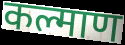
कल्माण